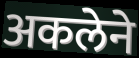
अकलेने